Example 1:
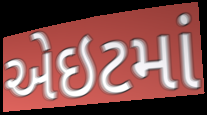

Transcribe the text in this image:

એઇટમાં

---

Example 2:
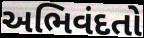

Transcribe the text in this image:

અભિવંદતો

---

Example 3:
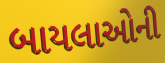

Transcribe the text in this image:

બાયલાઓની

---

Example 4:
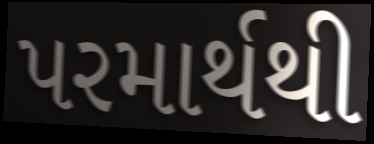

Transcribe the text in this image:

પરમાર્થથી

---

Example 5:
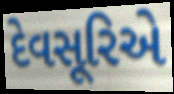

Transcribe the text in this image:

દેવસૂરિએ